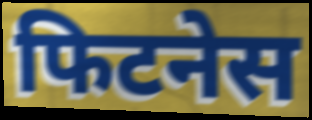
फिटनेस